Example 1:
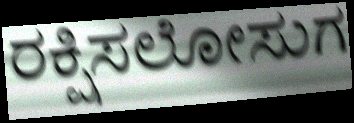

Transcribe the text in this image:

ರಕ್ಷಿಸಲೋಸುಗ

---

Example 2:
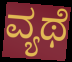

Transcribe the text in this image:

ವ್ಯಥೆ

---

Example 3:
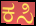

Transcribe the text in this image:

ಕಸಿ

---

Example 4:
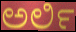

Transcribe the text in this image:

ಅರ್ಲಿ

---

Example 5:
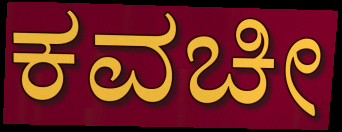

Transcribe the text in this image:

ಕವಚೀ